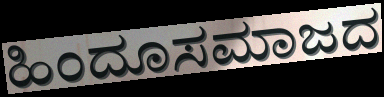
ಹಿಂದೂಸಮಾಜದ